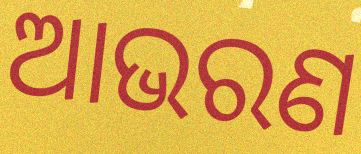
ଆଭରଣ